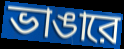
ভাঙারে